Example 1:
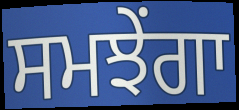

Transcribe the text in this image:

ਸਮਝੇਂਗਾ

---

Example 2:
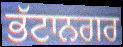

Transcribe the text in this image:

ਭੱਟਾਨਗਰ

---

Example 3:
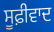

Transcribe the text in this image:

ਸੂਫ਼ੀਵਾਦ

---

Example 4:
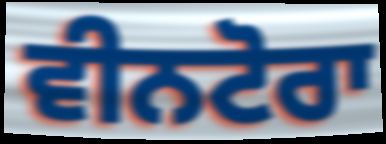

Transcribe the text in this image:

ਵੀਨਟੋਰਾ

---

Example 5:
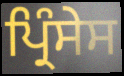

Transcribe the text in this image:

ਪ੍ਰਿੰਸੇਸ